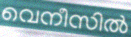
വെനീസിൽ